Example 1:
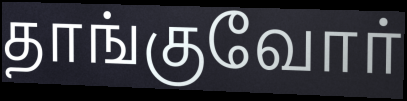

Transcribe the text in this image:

தாங்குவோர்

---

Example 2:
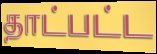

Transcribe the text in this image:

தாட்பட்ட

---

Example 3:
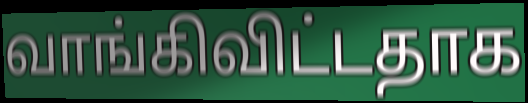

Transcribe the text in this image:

வாங்கிவிட்டதாக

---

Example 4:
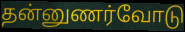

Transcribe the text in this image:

தன்னுணர்வோடு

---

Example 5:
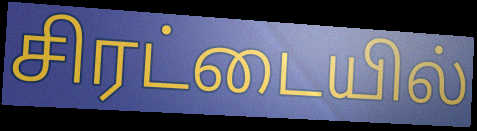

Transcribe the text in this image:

சிரட்டையில்